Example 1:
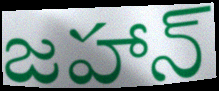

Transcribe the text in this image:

జహాన్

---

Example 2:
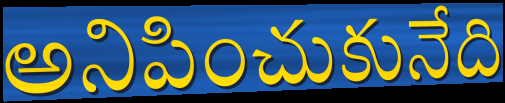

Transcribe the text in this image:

అనిపించుకునేది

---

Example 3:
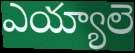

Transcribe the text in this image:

ఎయ్యాలె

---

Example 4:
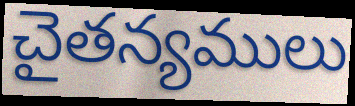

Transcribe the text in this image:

చైతన్యములు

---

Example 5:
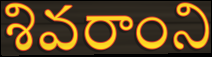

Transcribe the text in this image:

శివరాంని